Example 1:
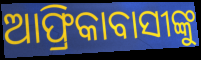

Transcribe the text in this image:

ଆଫ୍ରିକାବାସୀଙ୍କୁ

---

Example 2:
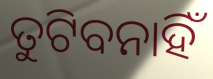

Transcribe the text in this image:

ତୁଟିବନାହିଁ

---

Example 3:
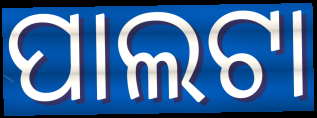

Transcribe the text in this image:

ପାଲଟା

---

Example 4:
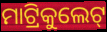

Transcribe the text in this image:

ମାଟ୍ରିକୁଲେଟ୍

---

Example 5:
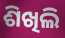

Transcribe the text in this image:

ଶିଖିଲି